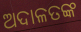
ଅଦାଳତଙ୍କ